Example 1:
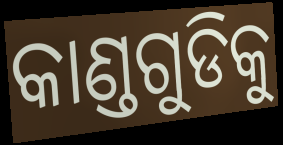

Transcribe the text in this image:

କାଣ୍ଡଗୁଡିକୁ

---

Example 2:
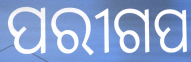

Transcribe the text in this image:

ପରୀଗପ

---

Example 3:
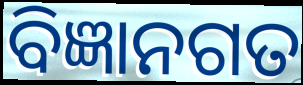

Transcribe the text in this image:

ବିଜ୍ଞାନଗତ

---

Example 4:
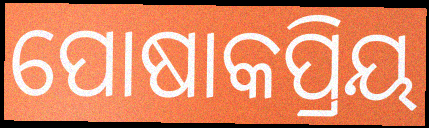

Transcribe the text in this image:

ପୋଷାକପ୍ରିୟ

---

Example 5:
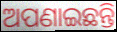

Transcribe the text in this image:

ଅପଣାଇଛନ୍ତି